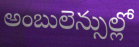
అంబులెన్సుల్లో